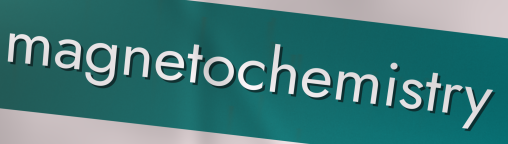
magnetochemistry